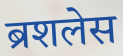
ब्रशलेस